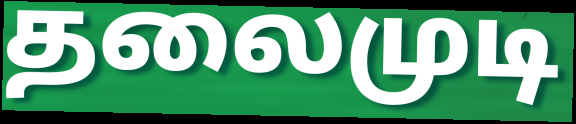
தலைமுடி